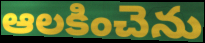
ఆలకించెను